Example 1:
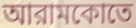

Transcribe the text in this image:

আরামকোতে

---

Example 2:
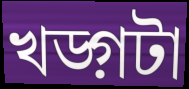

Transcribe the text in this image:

খড়্গটা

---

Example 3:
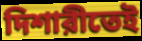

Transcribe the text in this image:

দিশারীতেই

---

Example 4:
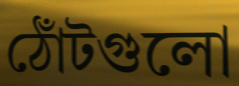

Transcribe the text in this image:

ঠোঁটগুলো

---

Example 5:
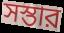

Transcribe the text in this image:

সস্তার